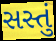
સસ્તું